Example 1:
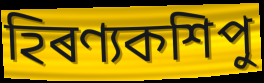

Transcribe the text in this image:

হিৰণ্যকশিপু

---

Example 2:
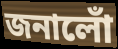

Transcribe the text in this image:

জনালোঁ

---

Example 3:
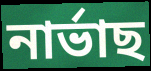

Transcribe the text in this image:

নাৰ্ভাছ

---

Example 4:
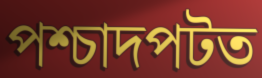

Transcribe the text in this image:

পশ্চাদপটত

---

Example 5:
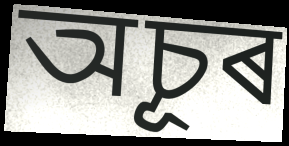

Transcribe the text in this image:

অচূৰ